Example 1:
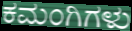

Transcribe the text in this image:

ಕಮಂಗಿಗಳು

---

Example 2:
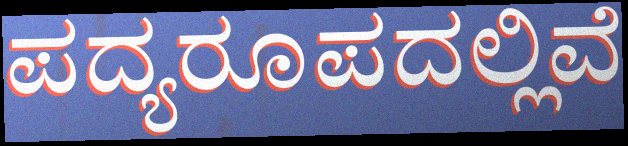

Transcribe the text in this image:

ಪದ್ಯರೂಪದಲ್ಲಿವೆ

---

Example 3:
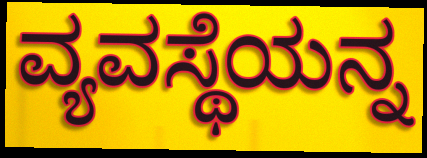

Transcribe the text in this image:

ವ್ಯವಸ್ಥೆಯನ್ನ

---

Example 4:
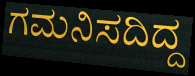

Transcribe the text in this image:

ಗಮನಿಸದಿದ್ದ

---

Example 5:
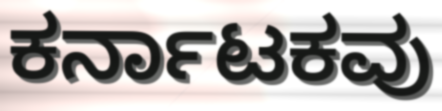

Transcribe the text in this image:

ಕರ್ನಾಟಕವು